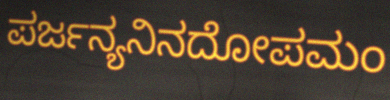
ಪರ್ಜನ್ಯನಿನದೋಪಮಂ